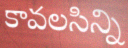
కావలసిన్ని